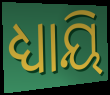
ଧ୍ୟାୟି